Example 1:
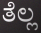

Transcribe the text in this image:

ತೆಲ್ಲ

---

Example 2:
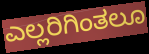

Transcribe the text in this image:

ಎಲ್ಲರಿಗಿಂತಲೂ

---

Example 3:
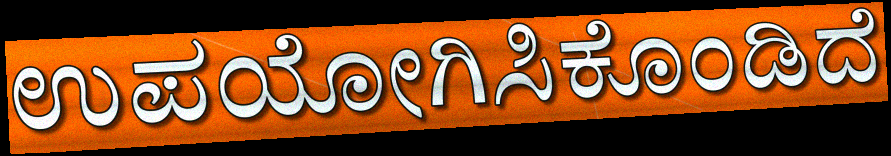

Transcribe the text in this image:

ಉಪಯೋಗಿಸಿಕೊಂಡಿದೆ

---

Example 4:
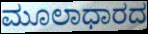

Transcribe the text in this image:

ಮೂಲಾಧಾರದ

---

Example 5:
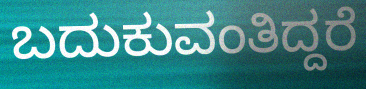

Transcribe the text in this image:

ಬದುಕುವಂತಿದ್ದರೆ